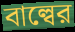
বাল্বের